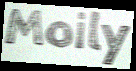
Moily